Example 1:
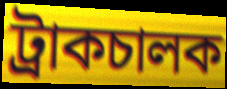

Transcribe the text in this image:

ট্রাকচালক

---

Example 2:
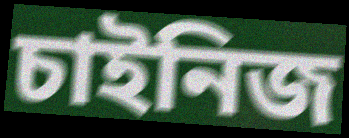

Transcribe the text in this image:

চাইনিজ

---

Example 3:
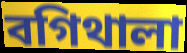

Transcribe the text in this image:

বগিথালা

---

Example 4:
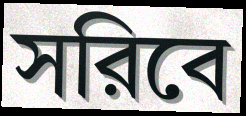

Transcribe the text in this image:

সরিবে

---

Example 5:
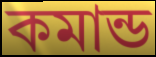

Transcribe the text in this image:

কমান্ড